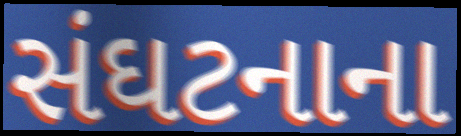
સંઘટનાના